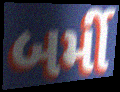
બર્મી